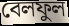
বেলফুল